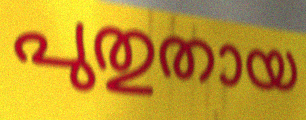
പുതുതായ